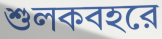
শুলকবহরে